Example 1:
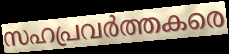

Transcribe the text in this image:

സഹപ്രവർത്തകരെ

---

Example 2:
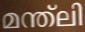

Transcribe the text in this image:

മന്ത്ലി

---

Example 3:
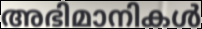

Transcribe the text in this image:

അഭിമാനികൾ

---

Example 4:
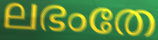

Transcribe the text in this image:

ലഭംതേ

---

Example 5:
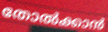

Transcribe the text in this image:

തോൽക്കാൻ